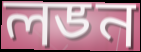
লঙ্ন